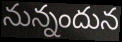
నున్నందున